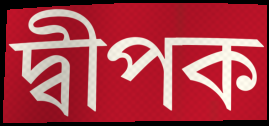
দ্বীপক